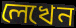
লেখেন